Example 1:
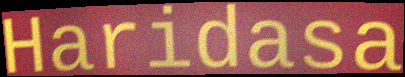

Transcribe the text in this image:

Haridasa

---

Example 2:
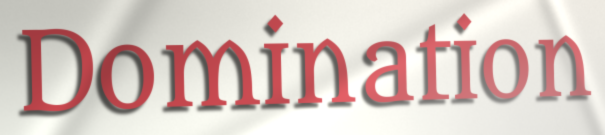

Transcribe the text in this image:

Domination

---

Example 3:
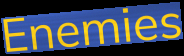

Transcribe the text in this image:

Enemies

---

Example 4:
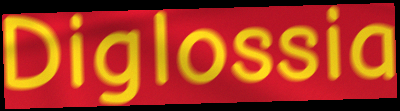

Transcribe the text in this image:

Diglossia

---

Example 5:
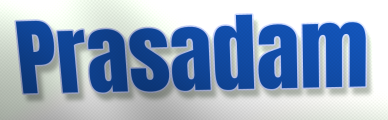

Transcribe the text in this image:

Prasadam